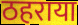
ठहराया